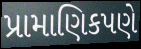
પ્રામાણિકપણે